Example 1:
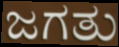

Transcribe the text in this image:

ಜಗತು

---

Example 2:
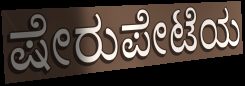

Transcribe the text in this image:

ಷೇರುಪೇಟೆಯ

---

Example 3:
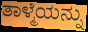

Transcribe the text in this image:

ತಾಳ್ಮೆಯನ್ನು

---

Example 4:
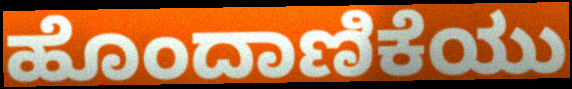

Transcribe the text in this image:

ಹೊಂದಾಣಿಕೆಯು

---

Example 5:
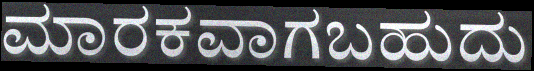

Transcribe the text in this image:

ಮಾರಕವಾಗಬಹುದು